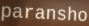
paransho